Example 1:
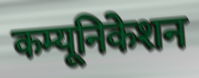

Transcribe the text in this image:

कम्यूनिकेशन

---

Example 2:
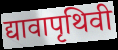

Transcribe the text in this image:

द्यावापृथिवी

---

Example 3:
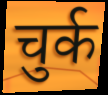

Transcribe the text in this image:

चुर्क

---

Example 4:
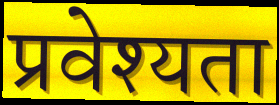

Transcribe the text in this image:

प्रवेश्यता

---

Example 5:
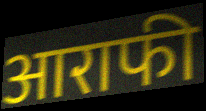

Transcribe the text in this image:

आराफी